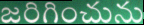
జరిగించును